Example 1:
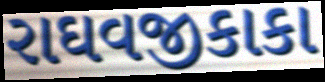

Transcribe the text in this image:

રાઘવજીકાકા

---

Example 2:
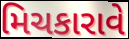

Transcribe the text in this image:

મિચકારાવે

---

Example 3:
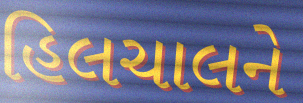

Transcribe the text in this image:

હિલચાલને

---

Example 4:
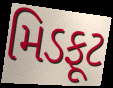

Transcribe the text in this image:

મિડફૂટ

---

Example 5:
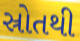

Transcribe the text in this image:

સ્રોતથી